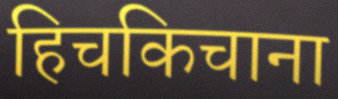
हिचकिचाना